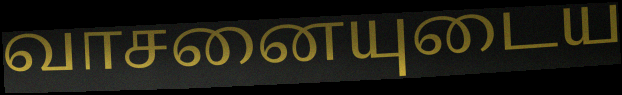
வாசனையுடைய